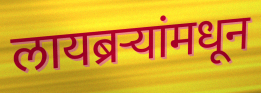
लायब्रऱ्यांमधून